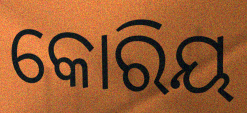
କୋରିୟ